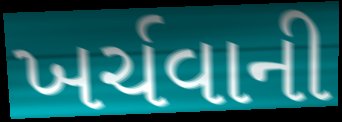
ખર્ચવાની